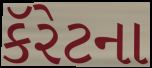
કૅરેટના